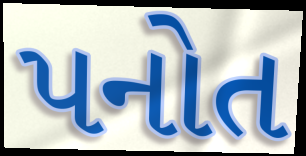
પનોત